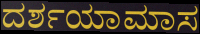
ದರ್ಶಯಾಮಾಸ